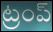
ట్రంప్